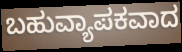
ಬಹುವ್ಯಾಪಕವಾದ